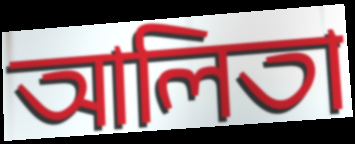
আলিতা